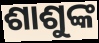
ଶାଶୁଙ୍କ